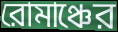
রোমাঞ্চের